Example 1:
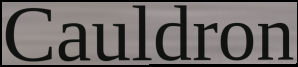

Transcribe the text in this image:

Cauldron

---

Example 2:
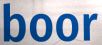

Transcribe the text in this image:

boor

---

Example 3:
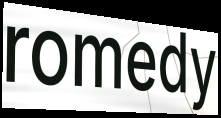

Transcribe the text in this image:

romedy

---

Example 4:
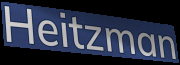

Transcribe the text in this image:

Heitzman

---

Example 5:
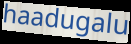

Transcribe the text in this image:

haadugalu